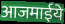
आजमाईये